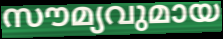
സൗമ്യവുമായ